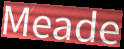
Meade